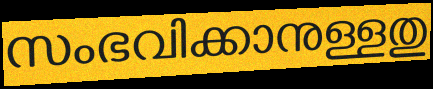
സംഭവിക്കാനുള്ളതു